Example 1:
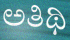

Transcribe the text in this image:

ಅತಿಥಿ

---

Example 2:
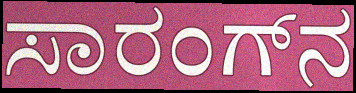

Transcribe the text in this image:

ಸಾರಂಗ್‌ನ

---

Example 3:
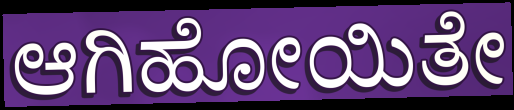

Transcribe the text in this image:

ಆಗಿಹೋಯಿತೇ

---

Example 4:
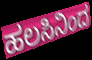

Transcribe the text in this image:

ಹಲಸಿನಿಂದ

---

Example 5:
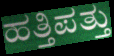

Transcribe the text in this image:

ಹತ್ತಿಪತ್ತು